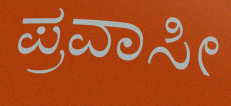
ಪ್ರವಾಸೀ